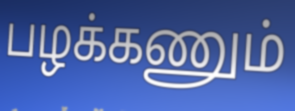
பழக்கணும்